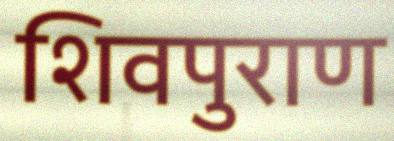
शिवपुराण